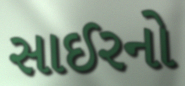
સાઈરનો